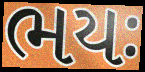
ભયઃ